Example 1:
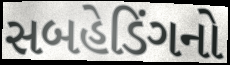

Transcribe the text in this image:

સબહેડિંગનો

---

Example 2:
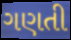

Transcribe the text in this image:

ગણતી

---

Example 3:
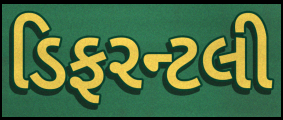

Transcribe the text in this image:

ડિફરન્ટલી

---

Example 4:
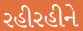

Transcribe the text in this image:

રહીરહીને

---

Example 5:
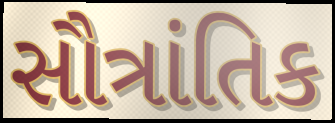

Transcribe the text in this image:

સૌત્રાંતિક